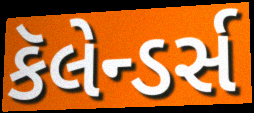
કૅલેન્ડર્સ